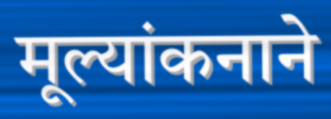
मूल्यांकनाने